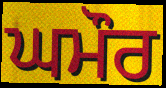
ਘਮੌਰ